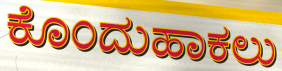
ಕೊಂದುಹಾಕಲು